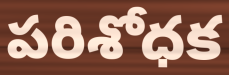
పరిశోధక